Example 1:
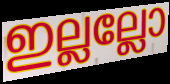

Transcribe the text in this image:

ഇല്ലല്ലോ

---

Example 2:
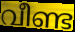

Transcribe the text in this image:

വീണ്ട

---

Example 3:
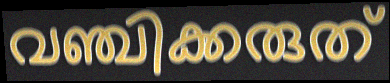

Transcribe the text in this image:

വഞ്ചിക്കരുത്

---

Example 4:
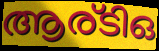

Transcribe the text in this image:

ആര്ടിഒ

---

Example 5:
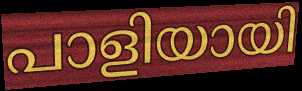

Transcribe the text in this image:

പാളിയായി